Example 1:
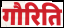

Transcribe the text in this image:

गौरिति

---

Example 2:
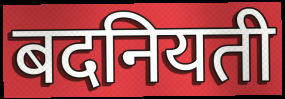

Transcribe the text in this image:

बदनियती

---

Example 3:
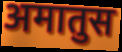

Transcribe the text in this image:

अमातुस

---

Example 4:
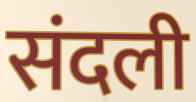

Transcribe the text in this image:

संदली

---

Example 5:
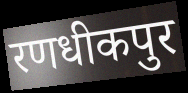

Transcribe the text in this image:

रणधीकपुर